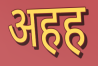
अहह